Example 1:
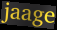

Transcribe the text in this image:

jaage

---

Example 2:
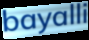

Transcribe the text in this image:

bayalli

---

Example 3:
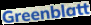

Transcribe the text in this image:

Greenblatt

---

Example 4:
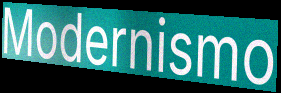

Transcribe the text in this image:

Modernismo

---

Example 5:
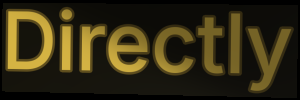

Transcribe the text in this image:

Directly